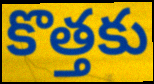
కొత్తకు